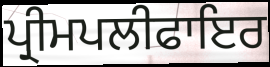
ਪ੍ਰੀਮਪਲੀਫਾਇਰ